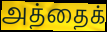
அத்தைக்